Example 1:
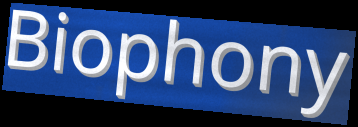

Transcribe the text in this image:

Biophony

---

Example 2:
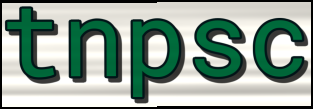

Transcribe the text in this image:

tnpsc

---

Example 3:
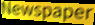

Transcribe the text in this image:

Newspaper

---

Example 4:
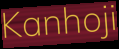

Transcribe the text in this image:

Kanhoji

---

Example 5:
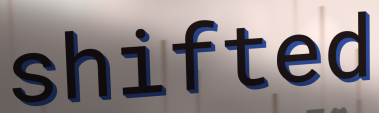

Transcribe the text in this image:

shifted